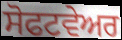
ਸੋਫਟਵੇਅਰ